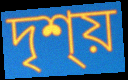
দৃশ্য়